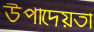
উপাদেয়তা